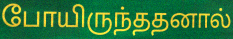
போயிருந்ததனால்